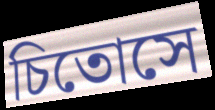
চিতোসে